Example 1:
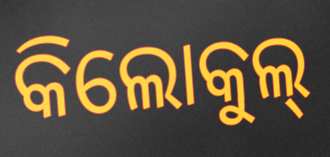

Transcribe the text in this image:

କିଲୋକୁଲ୍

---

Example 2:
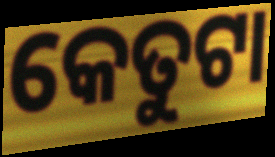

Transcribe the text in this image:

କେତୁଟା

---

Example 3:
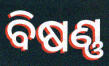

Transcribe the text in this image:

ବିଷଣ୍ଣ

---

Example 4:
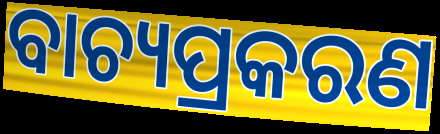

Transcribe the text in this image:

ବାଚ୍ୟପ୍ରକରଣ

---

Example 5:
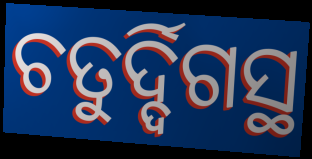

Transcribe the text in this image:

ଚତୁର୍ଦ୍ଦିଗସ୍ଥ